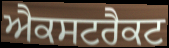
ਐਕਸਟਰੈਕਟ